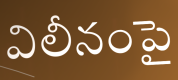
విలీనంపై